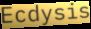
Ecdysis